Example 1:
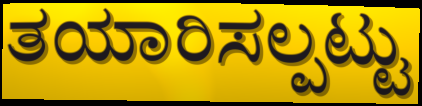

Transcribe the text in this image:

ತಯಾರಿಸಲ್ಪಟ್ಟು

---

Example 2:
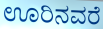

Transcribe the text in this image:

ಊರಿನವರೆ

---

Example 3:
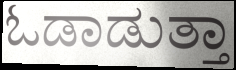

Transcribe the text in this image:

ಓಡಾಡುತ್ತಾ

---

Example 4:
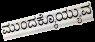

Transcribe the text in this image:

ಮುಂದಕ್ಕೊಯ್ಯುವ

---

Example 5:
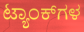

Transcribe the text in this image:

ಟ್ಯಾಂಕ್‌ಗಳ